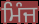
ਮਿੰਜ